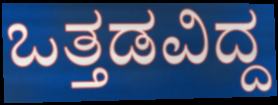
ಒತ್ತಡವಿದ್ದ